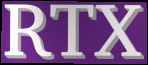
RTX